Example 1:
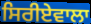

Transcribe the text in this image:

ਸਿਰੀਏਵਾਲਾ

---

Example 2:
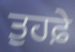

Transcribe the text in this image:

ਤੁਹਫ਼ੇ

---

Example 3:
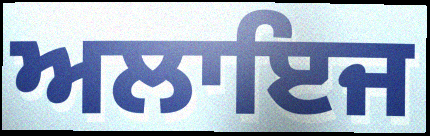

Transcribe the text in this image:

ਅਲਾਇਜ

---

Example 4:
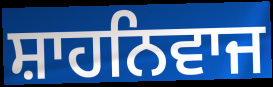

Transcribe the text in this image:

ਸ਼ਾਹਨਿਵਾਜ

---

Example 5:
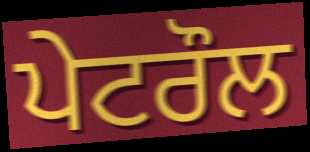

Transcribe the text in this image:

ਪੇਟਰੌਲ